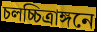
চলচ্চিত্রাঙ্গনে